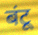
बंटू